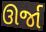
ઊર્જા